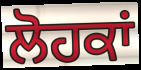
ਲੋਹਕਾਂ